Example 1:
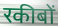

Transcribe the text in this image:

रकीबों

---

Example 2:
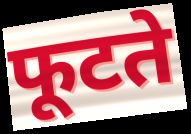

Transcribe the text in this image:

फूटते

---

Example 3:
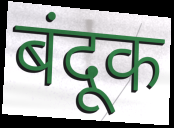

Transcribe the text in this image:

बंदूक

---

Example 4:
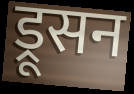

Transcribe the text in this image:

ड्रूसन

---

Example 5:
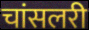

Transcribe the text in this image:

चांसलरी